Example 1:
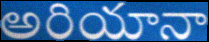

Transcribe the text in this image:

అరియానా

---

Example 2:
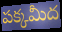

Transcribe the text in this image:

పక్కమీద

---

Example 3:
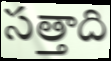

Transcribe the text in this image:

సత్తాది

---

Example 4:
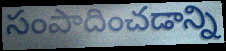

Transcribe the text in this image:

సంపాదించడాన్ని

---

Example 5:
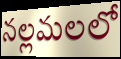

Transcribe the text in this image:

నల్లమలలో